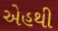
એહથી